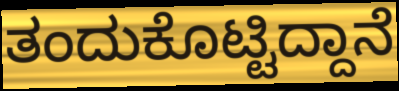
ತಂದುಕೊಟ್ಟಿದ್ದಾನೆ